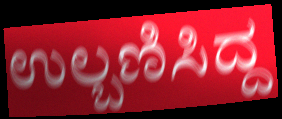
ಉಲ್ಬಣಿಸಿದ್ದ